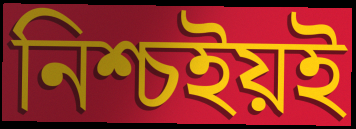
নিশ্চইয়ই